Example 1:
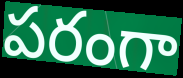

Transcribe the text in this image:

పరంగా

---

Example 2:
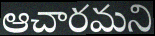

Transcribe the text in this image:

ఆచారమని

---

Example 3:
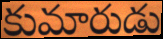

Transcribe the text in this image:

కుమారుడు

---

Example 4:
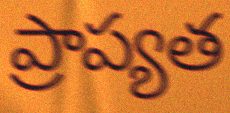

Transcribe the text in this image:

ప్రాప్యత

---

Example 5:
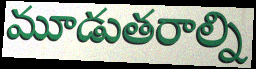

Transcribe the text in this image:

మూడుతరాల్ని